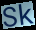
Sk